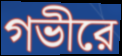
গভীরে